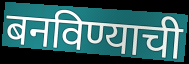
बनविण्याची